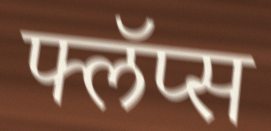
फ्लॅप्स